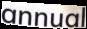
annual